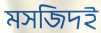
মসজিদই